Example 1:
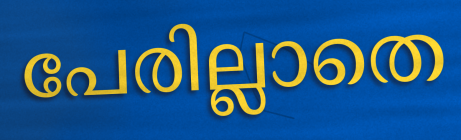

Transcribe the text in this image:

പേരില്ലാതെ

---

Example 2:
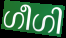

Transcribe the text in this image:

ഗീഗി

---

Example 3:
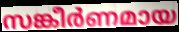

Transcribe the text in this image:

സങ്കീർണമായ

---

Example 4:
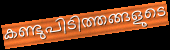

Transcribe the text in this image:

കണ്ടുപിടിത്തങ്ങളുടെ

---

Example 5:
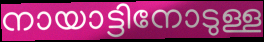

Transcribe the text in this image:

നായാട്ടിനോടുള്ള